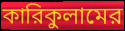
কারিকুলামের